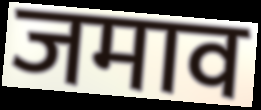
जमाव